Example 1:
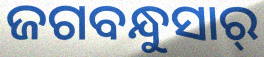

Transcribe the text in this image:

ଜଗବନ୍ଧୁସାର୍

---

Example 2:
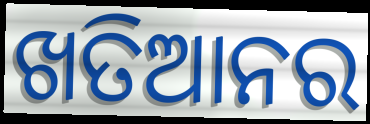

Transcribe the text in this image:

ଖତିଆନର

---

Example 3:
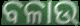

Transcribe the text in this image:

ବଳାଉ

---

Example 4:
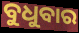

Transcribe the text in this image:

ବୁଧୁବାର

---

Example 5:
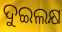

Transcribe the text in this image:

ଦୁଇଲକ୍ଷ